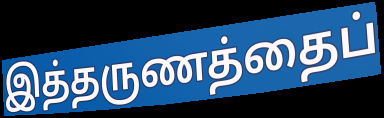
இத்தருணத்தைப்